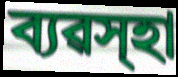
ব্যৱস্হা